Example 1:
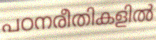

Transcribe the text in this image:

പഠനരീതികളിൽ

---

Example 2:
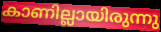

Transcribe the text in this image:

കാണില്ലായിരുന്നു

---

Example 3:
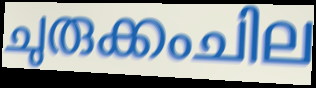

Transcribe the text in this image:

ചുരുക്കംചില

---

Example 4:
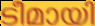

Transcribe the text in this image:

ടീമായി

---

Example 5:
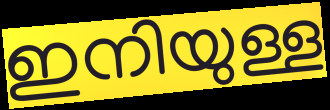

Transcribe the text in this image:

ഇനിയുള്ള